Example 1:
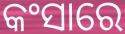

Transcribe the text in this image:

କଂସାରେ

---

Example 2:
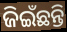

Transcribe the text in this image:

ଜିଇଁଛନ୍ତି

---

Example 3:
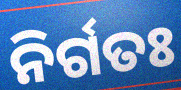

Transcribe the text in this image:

ନିର୍ଗତଃ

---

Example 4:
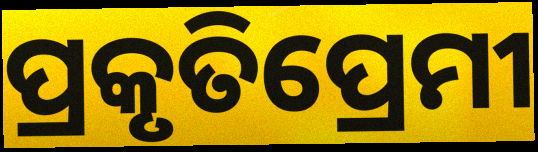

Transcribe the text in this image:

ପ୍ରକୃତିପ୍ରେମୀ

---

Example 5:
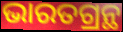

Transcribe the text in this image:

ଭାରତଗ୍ରନ୍ଥ